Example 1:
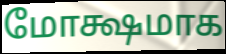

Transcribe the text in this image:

மோக்ஷமாக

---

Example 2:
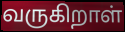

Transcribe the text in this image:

வருகிறாள்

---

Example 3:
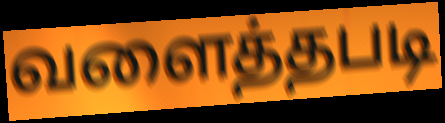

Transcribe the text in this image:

வளைத்தபடி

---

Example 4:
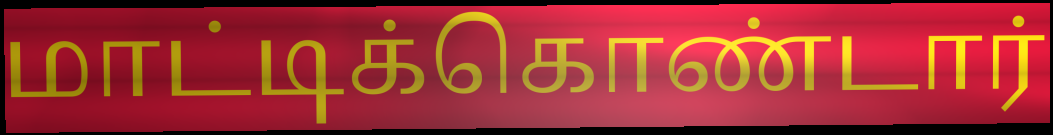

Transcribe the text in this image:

மாட்டிக்கொண்டார்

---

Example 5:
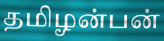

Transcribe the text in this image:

தமிழன்பன்